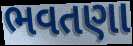
ભવતણા